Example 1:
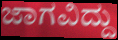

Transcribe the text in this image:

ಜಾಗವಿದ್ದು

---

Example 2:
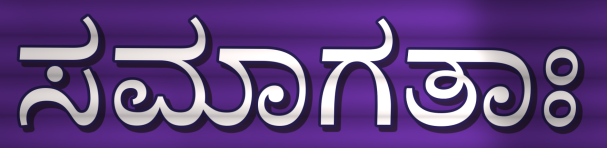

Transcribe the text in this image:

ಸಮಾಗತಾಃ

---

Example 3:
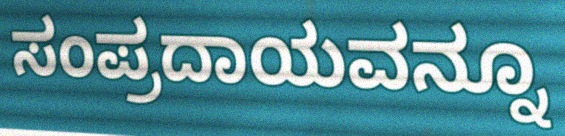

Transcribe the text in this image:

ಸಂಪ್ರದಾಯವನ್ನೂ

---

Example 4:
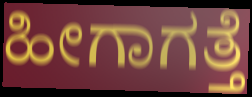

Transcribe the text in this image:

ಹೀಗಾಗತ್ತೆ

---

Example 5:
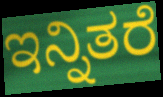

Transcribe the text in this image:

ಇನ್ನಿತರೆ